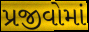
પ્રજીવોમાં